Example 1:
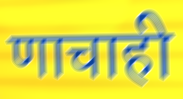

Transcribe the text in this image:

णाचाही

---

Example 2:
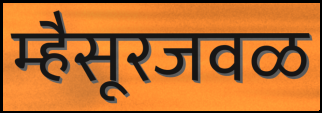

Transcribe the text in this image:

म्हैसूरजवळ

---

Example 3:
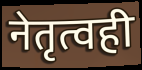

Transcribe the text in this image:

नेतृत्वही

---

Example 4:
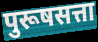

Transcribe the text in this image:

पुरूषसत्ता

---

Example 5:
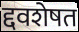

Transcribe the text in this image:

द्दवशेषत